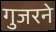
गुजरने